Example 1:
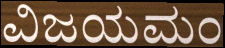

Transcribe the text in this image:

ವಿಜಯಮಂ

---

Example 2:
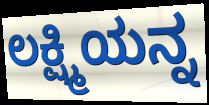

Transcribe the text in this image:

ಲಕ್ಷ್ಮಿಯನ್ನ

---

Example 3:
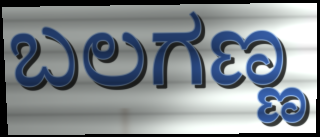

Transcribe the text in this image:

ಬಲಗಣ್ಣ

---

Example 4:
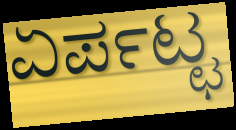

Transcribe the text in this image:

ಏರ್ಪಟ್ಟ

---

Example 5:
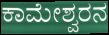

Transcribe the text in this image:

ಕಾಮೇಶ್ವರನ